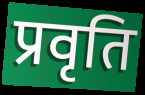
प्रवृति